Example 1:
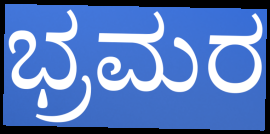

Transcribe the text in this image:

ಭ್ರಮರ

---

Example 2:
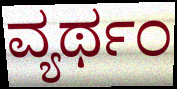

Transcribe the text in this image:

ವ್ಯರ್ಥಂ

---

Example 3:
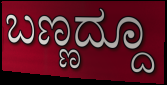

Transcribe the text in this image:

ಬಣ್ಣದ್ದೂ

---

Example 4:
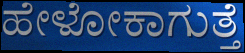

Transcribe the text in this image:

ಹೇಳೋಕಾಗುತ್ತೆ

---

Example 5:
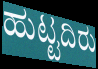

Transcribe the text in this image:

ಹುಟ್ಟದಿರು